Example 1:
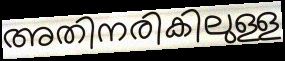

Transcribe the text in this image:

അതിനരികിലുള്ള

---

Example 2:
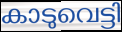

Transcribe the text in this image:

കാടുവെട്ടി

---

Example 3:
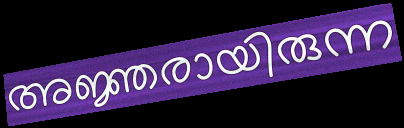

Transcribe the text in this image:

അജ്ഞരായിരുന്ന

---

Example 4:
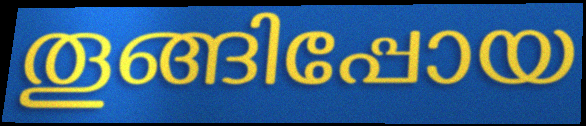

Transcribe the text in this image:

തൂങ്ങിപ്പോയ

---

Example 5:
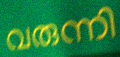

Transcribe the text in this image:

വരുന്നി